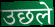
उछले